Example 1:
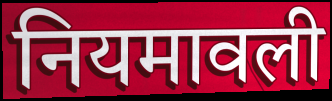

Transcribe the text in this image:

नियमावली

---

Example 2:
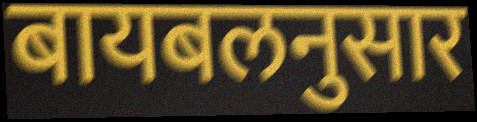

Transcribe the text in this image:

बायबलनुसार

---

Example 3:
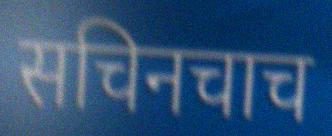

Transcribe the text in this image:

सचिनचाच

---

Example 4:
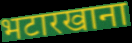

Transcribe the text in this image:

भटारखाना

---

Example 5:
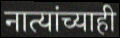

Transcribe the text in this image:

नात्यांच्याही